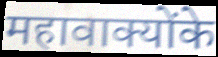
महावाक्योंके